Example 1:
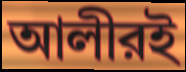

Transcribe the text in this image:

আলীরই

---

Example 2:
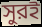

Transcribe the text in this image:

সুরই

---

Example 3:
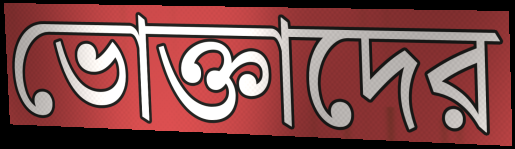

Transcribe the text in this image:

ভোক্তাদের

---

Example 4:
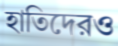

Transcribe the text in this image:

হাতিদেরও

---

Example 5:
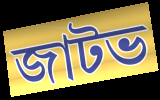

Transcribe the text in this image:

জাটভ